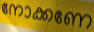
നോക്കണേ